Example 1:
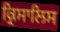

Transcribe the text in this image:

ਕ੍ਰਿਸਾਲਿਸ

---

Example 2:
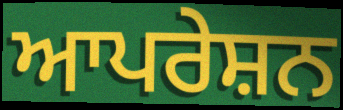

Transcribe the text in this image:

ਆਪਰੇਸ਼ਨ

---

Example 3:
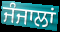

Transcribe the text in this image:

ਜੰਜਾਲਾਂ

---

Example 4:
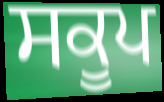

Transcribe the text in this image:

ਸਕੂਪ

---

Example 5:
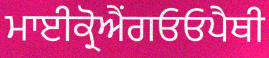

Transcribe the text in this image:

ਮਾਈਕ੍ਰੋਐਂਗਓਓਪੈਥੀ